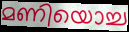
മണിയൊച്ച